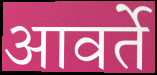
आवर्ते